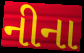
નીના